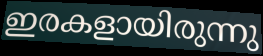
ഇരകളായിരുന്നു